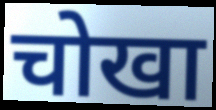
चोखा